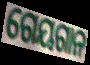
ଗେୟଗାନ